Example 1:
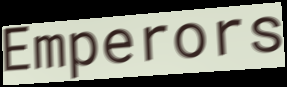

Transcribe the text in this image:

Emperors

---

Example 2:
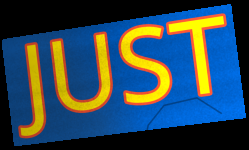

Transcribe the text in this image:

JUST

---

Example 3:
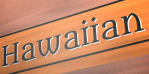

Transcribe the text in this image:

Hawaiian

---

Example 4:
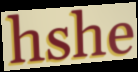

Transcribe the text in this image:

hshe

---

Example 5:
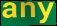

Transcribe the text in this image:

any